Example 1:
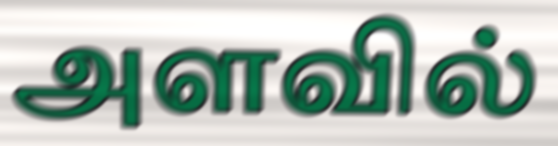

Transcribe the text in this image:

அளவில்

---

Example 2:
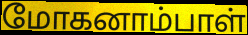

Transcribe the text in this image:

மோகனாம்பாள்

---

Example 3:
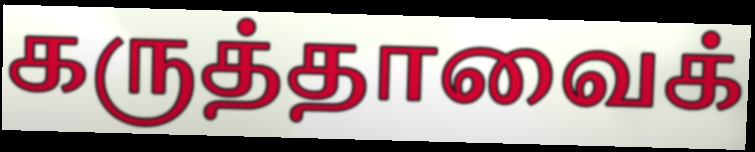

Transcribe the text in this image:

கருத்தாவைக்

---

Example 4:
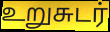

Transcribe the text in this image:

உறுசுடர்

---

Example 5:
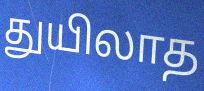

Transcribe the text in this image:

துயிலாத